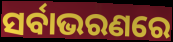
ସର୍ବାଭରଣରେ